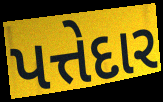
પત્તેદાર